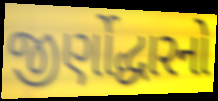
જીર્ણોદ્ધારનો